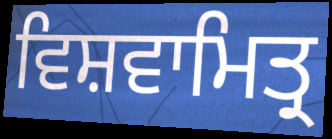
ਵਿਸ਼ਵਾਮਿਤ੍ਰ